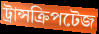
ট্রান্সক্রিপটেজ